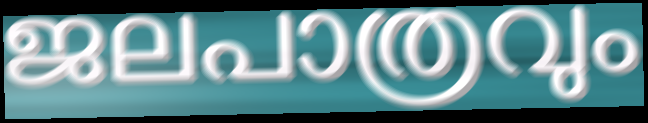
ജലപാത്രവും